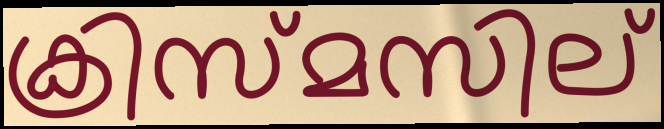
ക്രിസ്മസില്